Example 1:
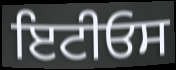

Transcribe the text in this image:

ਇਟੀਓਸ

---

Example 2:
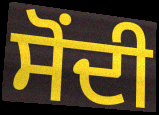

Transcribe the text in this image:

ਸੋਂਦੀ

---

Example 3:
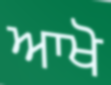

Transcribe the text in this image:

ਆਖੋ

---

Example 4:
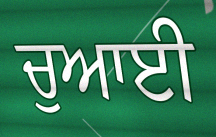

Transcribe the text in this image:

ਚੁਆਈ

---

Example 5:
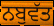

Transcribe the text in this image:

ਨਬੁਵੱਤ